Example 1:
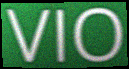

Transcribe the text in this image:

VIO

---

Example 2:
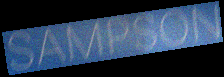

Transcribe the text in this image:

SAMPSON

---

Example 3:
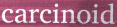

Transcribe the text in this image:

carcinoid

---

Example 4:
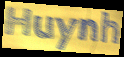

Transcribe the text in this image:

Huynh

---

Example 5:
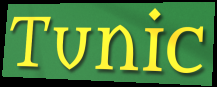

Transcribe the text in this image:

Tunic